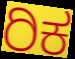
ರಿಕ